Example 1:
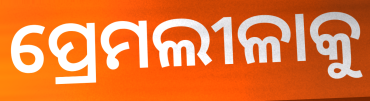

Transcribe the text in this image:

ପ୍ରେମଲୀଳାକୁ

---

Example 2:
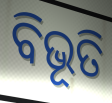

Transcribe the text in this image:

ବିଭୂତି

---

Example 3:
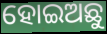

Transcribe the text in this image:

ହୋଇଅଛୁ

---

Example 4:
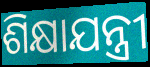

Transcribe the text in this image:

ଶିକ୍ଷାଯନ୍ତ୍ରୀ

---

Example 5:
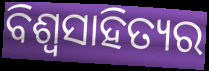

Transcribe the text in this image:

ବିଶ୍ଵସାହିତ୍ୟର